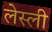
लेस्ली